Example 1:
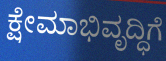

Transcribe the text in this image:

ಕ್ಷೇಮಾಭಿವೃದ್ಧಿಗೆ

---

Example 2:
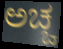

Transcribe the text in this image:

ಅಚ್ಚ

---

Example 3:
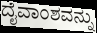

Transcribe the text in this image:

ದೈವಾಂಶವನ್ನು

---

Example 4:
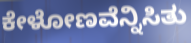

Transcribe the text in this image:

ಕೇಳೋಣವೆನ್ನಿಸಿತು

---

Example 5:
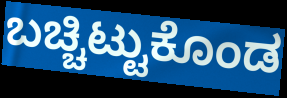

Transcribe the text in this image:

ಬಚ್ಚಿಟ್ಟುಕೊಂಡ